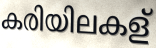
കരിയിലകള്